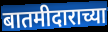
बातमीदाराच्या